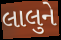
લાલુને